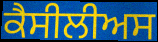
ਕੈਸੀਲੀਅਸ